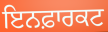
ਇਨਫ਼ਾਰਕਟ